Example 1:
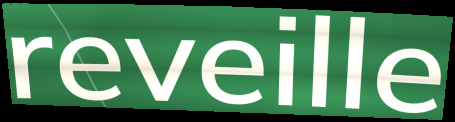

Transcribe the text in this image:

reveille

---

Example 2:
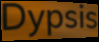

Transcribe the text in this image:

Dypsis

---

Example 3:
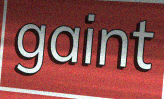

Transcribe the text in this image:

gaint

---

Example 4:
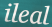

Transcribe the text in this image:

ileal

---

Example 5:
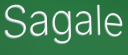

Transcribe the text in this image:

Sagale